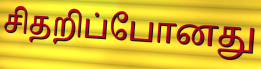
சிதறிப்போனது